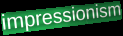
impressionism